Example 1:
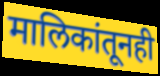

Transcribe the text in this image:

मालिकांतूनही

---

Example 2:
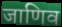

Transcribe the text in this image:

जाणिव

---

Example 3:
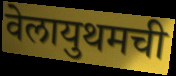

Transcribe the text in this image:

वेलायुथमची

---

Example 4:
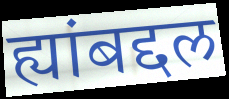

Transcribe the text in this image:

ह्यांबद्दल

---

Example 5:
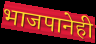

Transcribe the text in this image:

भाजपानेही